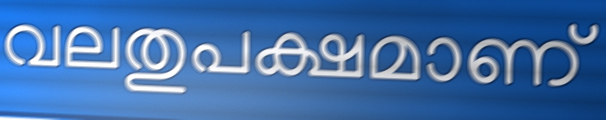
വലതുപക്ഷമാണ്